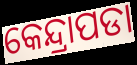
କେନ୍ଦ୍ରାପଡା